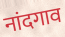
नांदगाव